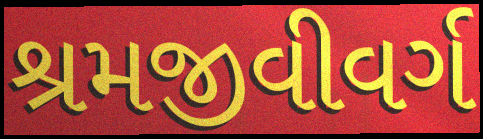
શ્રમજીવીવર્ગ